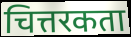
चित्तरकता